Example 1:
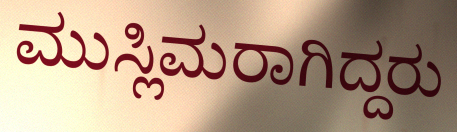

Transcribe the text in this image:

ಮುಸ್ಲಿಮರಾಗಿದ್ದರು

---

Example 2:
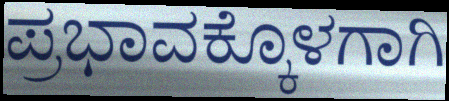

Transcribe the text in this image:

ಪ್ರಭಾವಕ್ಕೊಳಗಾಗಿ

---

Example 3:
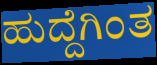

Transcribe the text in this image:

ಹುದ್ದೆಗಿಂತ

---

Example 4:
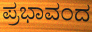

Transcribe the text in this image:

ಪ್ರಭಾವಂದ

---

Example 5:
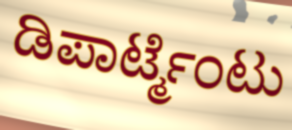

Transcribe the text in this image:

ಡಿಪಾರ್ಟ್ಮೆಂಟು